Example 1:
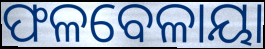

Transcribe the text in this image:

ଫଳବେଳାୟା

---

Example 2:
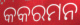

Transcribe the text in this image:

କକରମନ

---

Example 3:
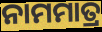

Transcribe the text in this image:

ନାମମାତ୍ର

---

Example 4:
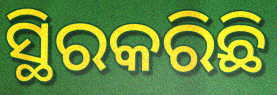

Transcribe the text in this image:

ସ୍ଥିରକରିଛି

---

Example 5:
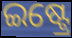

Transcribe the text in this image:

ଇଷ୍ଟ୍ରେ